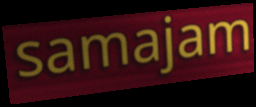
samajam